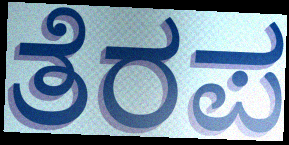
ತೆರಪ